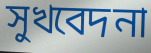
সুখবেদনা